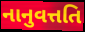
નાનુવત્તતિ